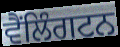
ਵੈਂਲਿੰਗਟਨ